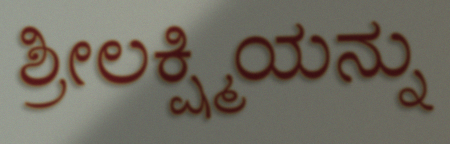
ಶ್ರೀಲಕ್ಷ್ಮಿಯನ್ನು